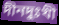
দীনদুঃখী